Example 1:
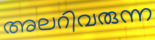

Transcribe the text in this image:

അലറിവരുന്ന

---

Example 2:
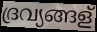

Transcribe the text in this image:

ദ്രവ്യങ്ങള്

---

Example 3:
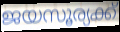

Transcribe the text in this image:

ജയസൂര്യക്ക്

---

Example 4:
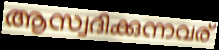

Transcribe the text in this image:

ആസ്വദിക്കുന്നവര്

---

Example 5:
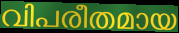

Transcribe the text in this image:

വിപരീതമായ